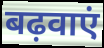
बढ़वाएं